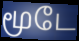
மூடே